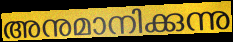
അനുമാനിക്കുന്നു